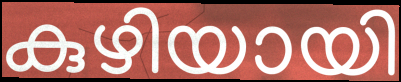
കുഴിയായി